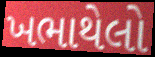
ખભાથેલો